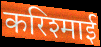
करिश्माई